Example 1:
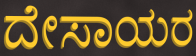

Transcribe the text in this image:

ದೇಸಾಯರ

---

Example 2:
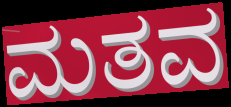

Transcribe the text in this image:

ಮತವ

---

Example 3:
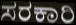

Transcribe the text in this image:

ಸರಕಾರಿ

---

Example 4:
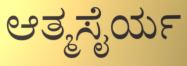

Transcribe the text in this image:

ಆತ್ಮಸೈರ್ಯ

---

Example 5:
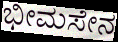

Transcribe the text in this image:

ಭೀಮಸೇನ